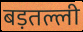
बड़तल्ली